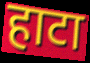
हाटा